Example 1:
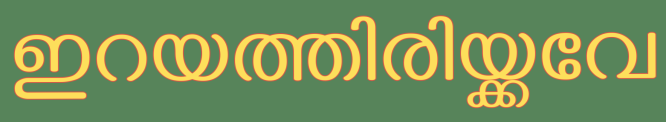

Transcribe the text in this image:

ഇറയത്തിരിയ്ക്കവേ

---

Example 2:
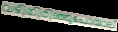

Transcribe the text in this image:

വഴിതിരിഞ്ഞുപോയാല്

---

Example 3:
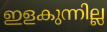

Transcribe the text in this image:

ഇളകുന്നില്ല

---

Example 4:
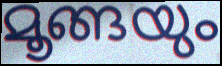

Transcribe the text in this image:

മൂങ്ങയും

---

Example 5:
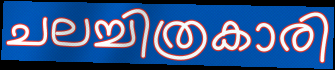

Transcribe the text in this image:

ചലച്ചിത്രകാരി